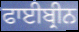
ਫਾਈਬ੍ਰੀਨ